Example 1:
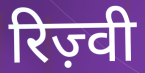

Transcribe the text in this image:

रिज़्वी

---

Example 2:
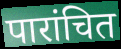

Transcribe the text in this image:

पारांचित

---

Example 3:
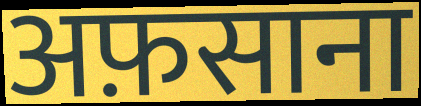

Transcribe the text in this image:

अफ़साना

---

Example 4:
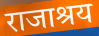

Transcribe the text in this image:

राजाश्रय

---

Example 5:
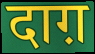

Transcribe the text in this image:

दाग़